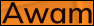
Awam